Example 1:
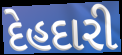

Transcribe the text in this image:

દેહદારી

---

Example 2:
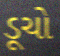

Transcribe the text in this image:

ડૂચો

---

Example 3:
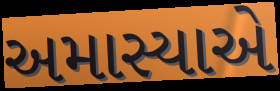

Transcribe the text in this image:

અમાસ્યાએ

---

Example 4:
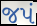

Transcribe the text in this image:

જપં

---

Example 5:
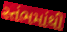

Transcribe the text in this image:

સ્તંભમાંથી